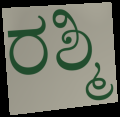
ರಶ್ಮಿ